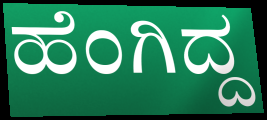
ಹೆಂಗಿದ್ದ